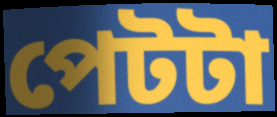
পেটটা